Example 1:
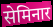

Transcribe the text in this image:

सेमिनार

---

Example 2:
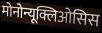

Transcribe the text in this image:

मोनोन्यूक्लिओसिस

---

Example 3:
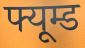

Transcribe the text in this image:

फ्यूम्ड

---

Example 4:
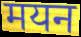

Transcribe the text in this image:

मयन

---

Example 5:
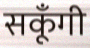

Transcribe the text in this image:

सकूँगी